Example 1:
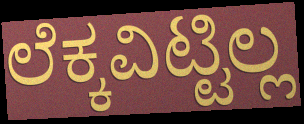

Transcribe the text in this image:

ಲೆಕ್ಕವಿಟ್ಟಿಲ್ಲ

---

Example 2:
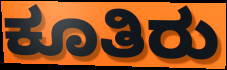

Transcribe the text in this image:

ಕೂತಿರು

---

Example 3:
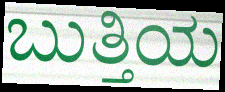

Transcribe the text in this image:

ಬುತ್ತಿಯ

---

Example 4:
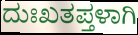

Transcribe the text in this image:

ದುಃಖತಪ್ತಳಾಗಿ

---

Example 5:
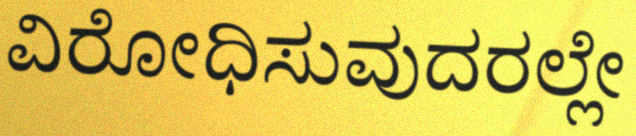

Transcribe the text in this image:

ವಿರೋಧಿಸುವುದರಲ್ಲೇ